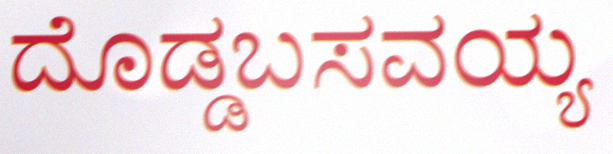
ದೊಡ್ಡಬಸವಯ್ಯ